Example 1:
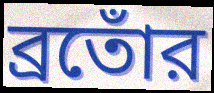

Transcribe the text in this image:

ব্রতোঁর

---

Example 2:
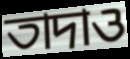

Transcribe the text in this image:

তাদাও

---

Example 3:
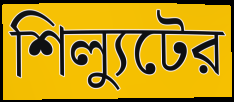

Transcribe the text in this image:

শিল্যুটের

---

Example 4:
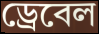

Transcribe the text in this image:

ড্রেবেল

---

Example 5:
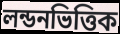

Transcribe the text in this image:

লন্ডনভিত্তিক